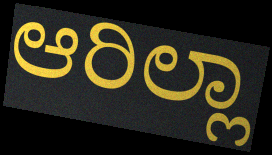
ಆರಿಲ್ಲಾ